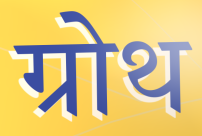
ग्रोथ